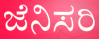
ಜೆನಿಸರಿ